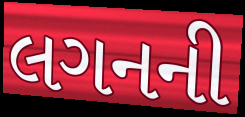
લગનની